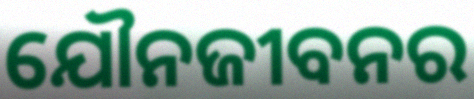
ଯୌନଜୀବନର